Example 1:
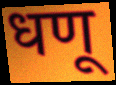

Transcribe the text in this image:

धणू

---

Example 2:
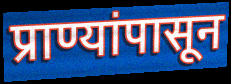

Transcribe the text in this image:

प्राण्यांपासून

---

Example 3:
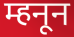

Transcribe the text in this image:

म्हनून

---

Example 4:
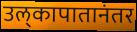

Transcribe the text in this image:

उल्कापातानंतर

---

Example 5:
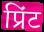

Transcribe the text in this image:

प्रिंट